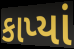
કાપ્યાં